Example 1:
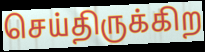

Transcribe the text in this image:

செய்திருக்கிற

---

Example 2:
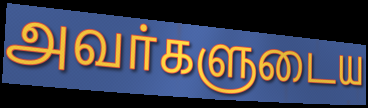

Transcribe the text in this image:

அவர்களுடைய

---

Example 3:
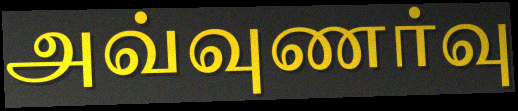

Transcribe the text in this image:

அவ்வுணர்வு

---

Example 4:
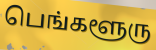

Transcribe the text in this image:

பெங்களூரு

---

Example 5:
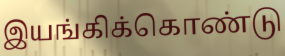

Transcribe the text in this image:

இயங்கிக்கொண்டு